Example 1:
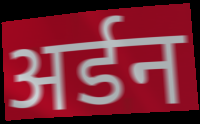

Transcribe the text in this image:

अर्डन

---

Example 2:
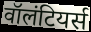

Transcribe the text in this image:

वॉलंटियर्स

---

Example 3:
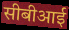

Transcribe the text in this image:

सीबीआई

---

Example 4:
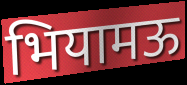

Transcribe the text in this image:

भियामऊ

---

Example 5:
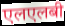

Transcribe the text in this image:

एलएलबी